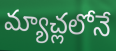
మ్యాచ్లలోనే